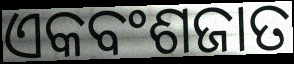
ଏକବଂଶଜାତ